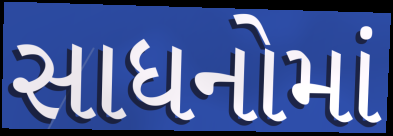
સાધનોમાં